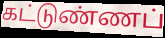
கட்டுண்ணப்